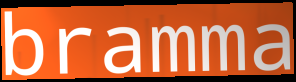
bramma